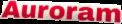
Auroram